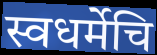
स्वधर्मेचि